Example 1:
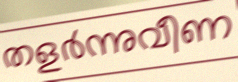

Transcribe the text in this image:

തളർന്നുവീണ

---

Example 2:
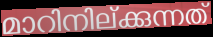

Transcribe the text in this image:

മാറിനില്ക്കുന്നത്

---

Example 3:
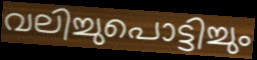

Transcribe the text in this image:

വലിച്ചുപൊട്ടിച്ചും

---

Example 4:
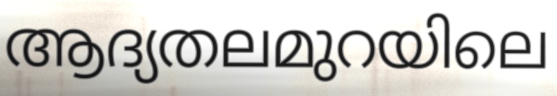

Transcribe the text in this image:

ആദ്യതലമുറയിലെ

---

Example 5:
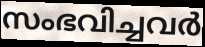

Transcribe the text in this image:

സംഭവിച്ചവർ